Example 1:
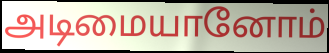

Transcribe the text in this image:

அடிமையானோம்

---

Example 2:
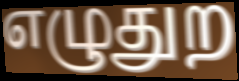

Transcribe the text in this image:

எழுதுற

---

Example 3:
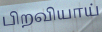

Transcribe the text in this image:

பிறவியாய்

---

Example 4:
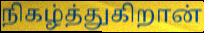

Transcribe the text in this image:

நிகழ்த்துகிறான்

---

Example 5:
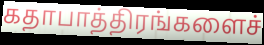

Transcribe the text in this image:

கதாபாத்திரங்களைச்